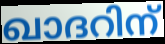
ഖാദറിന്